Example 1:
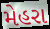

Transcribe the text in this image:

મેહરા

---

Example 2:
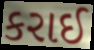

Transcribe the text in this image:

કરાઈ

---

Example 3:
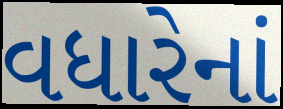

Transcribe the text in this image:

વધારેનાં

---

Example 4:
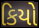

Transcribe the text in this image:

કિયો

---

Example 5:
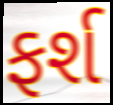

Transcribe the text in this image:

ફર્શ